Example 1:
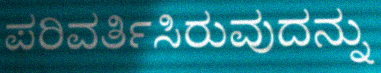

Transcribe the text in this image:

ಪರಿವರ್ತಿಸಿರುವುದನ್ನು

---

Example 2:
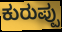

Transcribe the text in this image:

ಕುರುಪ್ಪು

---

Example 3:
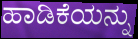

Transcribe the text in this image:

ಹಾಡಿಕೆಯನ್ನು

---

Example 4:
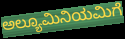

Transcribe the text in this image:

ಅಲ್ಯೂಮಿನಿಯಮಿಗೆ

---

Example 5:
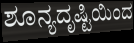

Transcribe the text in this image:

ಶೂನ್ಯದೃಷ್ಟಿಯಿಂದ